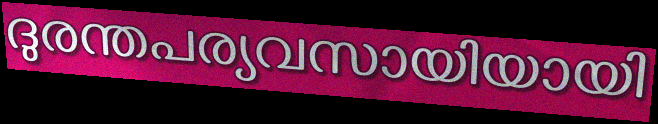
ദുരന്തപര്യവസായിയായി